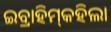
ଇବ୍ରାହିମ୍‌କହିଲା